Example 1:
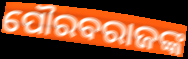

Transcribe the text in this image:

ପୌରବରାଜଙ୍କ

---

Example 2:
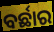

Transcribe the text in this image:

ବର୍ଛାର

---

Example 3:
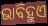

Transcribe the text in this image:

ଭାବିହୁଏ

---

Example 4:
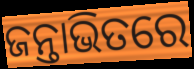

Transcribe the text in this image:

ଜନ୍ତାଭିତରେ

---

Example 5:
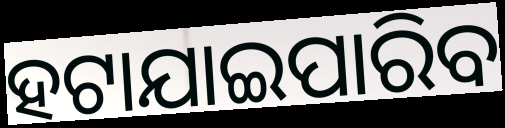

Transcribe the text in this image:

ହଟାଯାଇପାରିବ